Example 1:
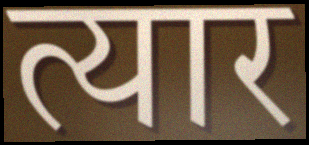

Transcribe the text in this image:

त्यार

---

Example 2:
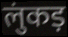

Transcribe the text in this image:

लुंकड़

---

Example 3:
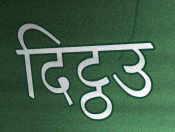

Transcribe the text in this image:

दिट्ठउ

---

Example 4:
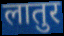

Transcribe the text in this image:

लातुर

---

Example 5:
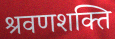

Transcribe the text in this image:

श्रवणशक्ति